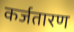
कर्जतारण